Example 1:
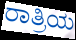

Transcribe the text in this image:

ರಾತ್ರಿಯ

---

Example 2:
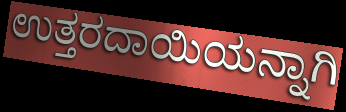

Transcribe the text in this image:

ಉತ್ತರದಾಯಿಯನ್ನಾಗಿ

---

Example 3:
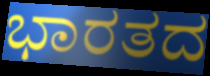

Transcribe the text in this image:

ಭಾರತದ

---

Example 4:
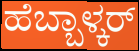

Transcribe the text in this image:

ಹೆಬ್ಬಾಳ್ಕರ್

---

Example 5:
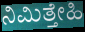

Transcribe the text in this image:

ನಿಮಿತ್ತೇಹಿ